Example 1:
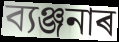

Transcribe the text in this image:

ব্যঞ্জনাৰ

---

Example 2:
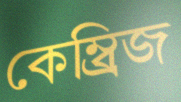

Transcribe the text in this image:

কেম্ব্ৰিজ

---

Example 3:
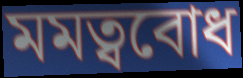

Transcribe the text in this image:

মমত্ববোধ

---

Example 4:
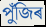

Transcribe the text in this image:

পুঁজিৰ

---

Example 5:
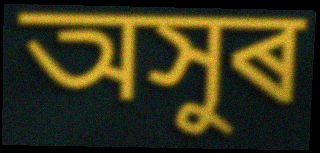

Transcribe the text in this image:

অসুৰ